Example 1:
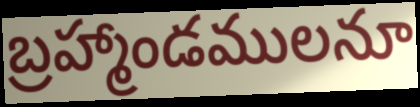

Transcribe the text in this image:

బ్రహ్మాండములనూ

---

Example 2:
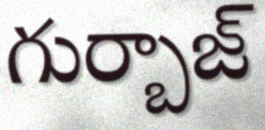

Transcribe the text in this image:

గుర్బాజ్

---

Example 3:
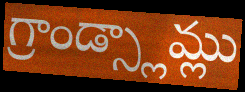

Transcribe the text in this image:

గ్రాండ్స్లామ్లు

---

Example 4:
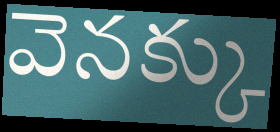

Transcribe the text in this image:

వెనక్కు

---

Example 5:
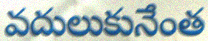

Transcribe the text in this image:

వదులుకునేంత